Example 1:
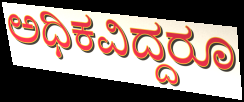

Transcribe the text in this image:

ಅಧಿಕವಿದ್ದರೂ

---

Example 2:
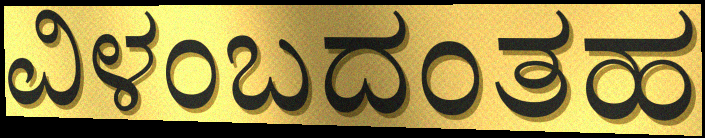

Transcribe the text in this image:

ವಿಳಂಬದಂತಹ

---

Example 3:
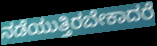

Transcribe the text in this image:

ನಡೆಯುತ್ತಿರಬೇಕಾದರೆ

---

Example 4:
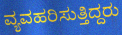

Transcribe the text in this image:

ವ್ಯವಹರಿಸುತ್ತಿದ್ದರು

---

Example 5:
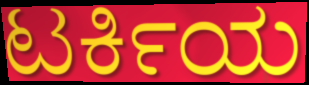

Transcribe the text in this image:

ಟರ್ಕಿಯ